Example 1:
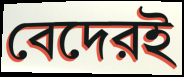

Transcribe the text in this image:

বেদেরই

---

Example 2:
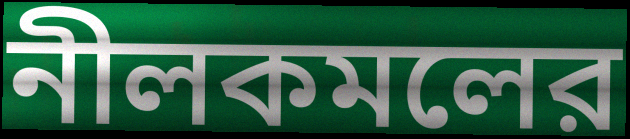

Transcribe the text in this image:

নীলকমলের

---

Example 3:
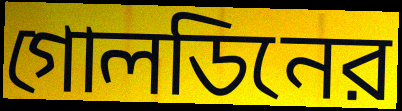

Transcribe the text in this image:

গোলডিনের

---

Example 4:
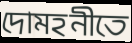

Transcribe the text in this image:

দোমহনীতে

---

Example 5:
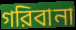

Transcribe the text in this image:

গরিবানা